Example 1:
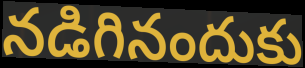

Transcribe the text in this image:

నడిగినందుకు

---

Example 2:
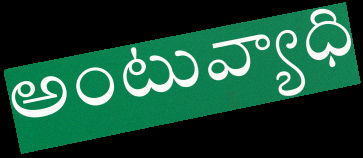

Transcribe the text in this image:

అంటువ్యాధి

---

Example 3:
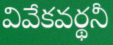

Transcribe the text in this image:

వివేకవర్థనీ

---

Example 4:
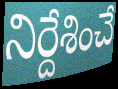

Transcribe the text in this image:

నిర్దేశించే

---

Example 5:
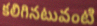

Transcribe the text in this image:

కలిగినటువంటి